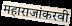
महाराजांकरवी